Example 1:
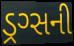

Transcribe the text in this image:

ડ્રગ્સની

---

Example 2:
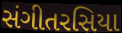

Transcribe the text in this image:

સંગીતરસિયા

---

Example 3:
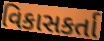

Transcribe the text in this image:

વિકાસકર્તા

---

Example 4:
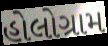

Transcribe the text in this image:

હોલોગ્રામ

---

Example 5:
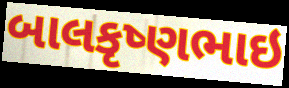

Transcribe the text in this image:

બાલકૃષ્ણભાઇ